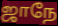
ஜாநே